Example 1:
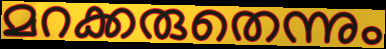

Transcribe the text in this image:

മറക്കരുതെന്നും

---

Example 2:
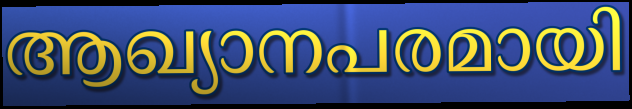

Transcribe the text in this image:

ആഖ്യാനപരമായി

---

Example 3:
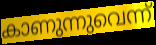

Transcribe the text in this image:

കാണുന്നുവെന്ന്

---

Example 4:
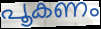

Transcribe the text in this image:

പൂകണം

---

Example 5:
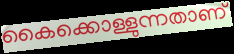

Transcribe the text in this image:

കൈക്കൊള്ളുന്നതാണ്